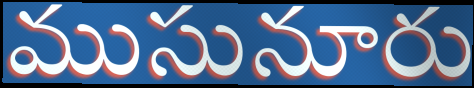
ముసునూరు